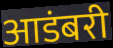
आडंबरी